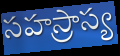
సహస్రాస్య